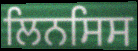
ਲਿਨਸਿਸ